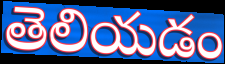
తెలియడం